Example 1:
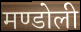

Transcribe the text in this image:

मण्डोली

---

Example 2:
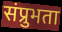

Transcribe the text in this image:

संप्रुभता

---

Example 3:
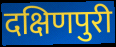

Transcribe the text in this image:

दक्षिणपुरी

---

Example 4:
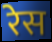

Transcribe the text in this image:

रेस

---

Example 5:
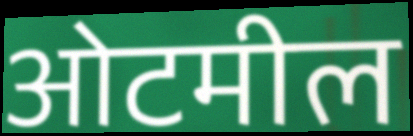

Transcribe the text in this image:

ओटमील